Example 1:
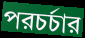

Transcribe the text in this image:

পরচর্চার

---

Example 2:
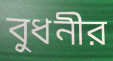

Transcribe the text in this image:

বুধনীর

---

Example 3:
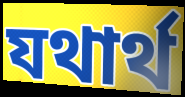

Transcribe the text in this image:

যথার্থ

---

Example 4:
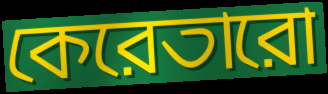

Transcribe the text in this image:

কেরেতারো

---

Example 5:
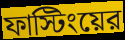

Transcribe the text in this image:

ফাস্টিংয়ের